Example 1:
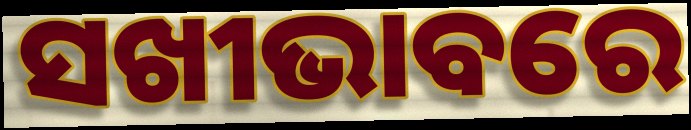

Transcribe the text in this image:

ସଖୀଭାବରେ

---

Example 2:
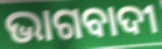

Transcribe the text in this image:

ଭାଗବାଦୀ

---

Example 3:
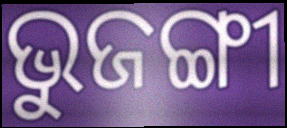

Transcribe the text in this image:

ଭୁଜଙ୍ଗୀ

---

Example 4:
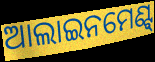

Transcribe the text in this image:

ଆଲାଇନମେଣ୍ଟ୍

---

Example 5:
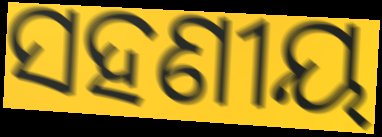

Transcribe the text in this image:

ସହଣୀୟ